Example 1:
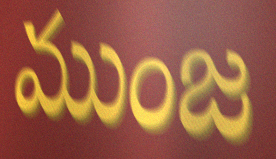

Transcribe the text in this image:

ముంజ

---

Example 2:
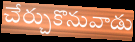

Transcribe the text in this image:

చేర్చుకొనువాడు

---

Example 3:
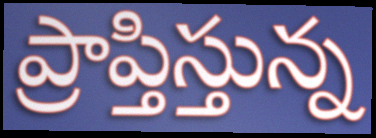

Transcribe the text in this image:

ప్రాప్తిస్తున్న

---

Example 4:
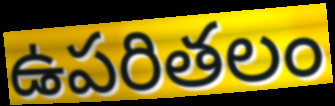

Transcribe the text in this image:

ఉపరితలం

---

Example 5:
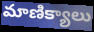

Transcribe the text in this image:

మాణిక్యాలు